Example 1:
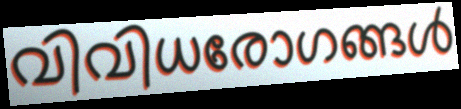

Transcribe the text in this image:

വിവിധരോഗങ്ങൾ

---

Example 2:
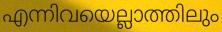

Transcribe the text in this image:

എന്നിവയെല്ലാത്തിലും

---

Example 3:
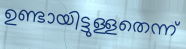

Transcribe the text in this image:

ഉണ്ടായിട്ടുള്ളതെന്ന്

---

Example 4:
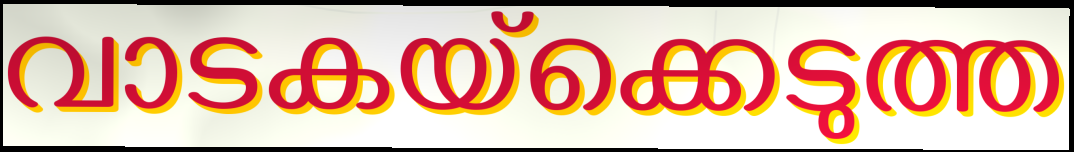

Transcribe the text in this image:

വാടകയ്‌ക്കെടുത്ത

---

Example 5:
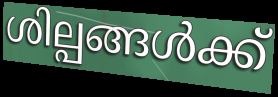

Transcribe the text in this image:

ശില്പങ്ങൾക്ക്